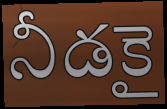
నీడకై